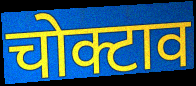
चोक्टाव